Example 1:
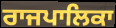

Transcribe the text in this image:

ਰਾਜਪਾਲਿਕਾ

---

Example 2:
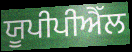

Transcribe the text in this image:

ਯੂਪੀਪੀਐੱਲ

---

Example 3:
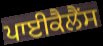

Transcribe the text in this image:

ਪਾਈਕੈਲੈਂਸ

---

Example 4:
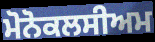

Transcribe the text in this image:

ਮੋਨੋਕਲਸੀਅਮ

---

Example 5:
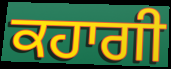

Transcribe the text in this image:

ਕਹਾਗੀ